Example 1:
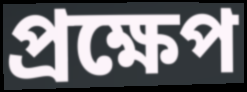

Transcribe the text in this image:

প্রক্ষেপ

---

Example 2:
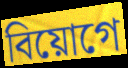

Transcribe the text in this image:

বিয়োগে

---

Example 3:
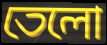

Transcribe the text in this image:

তেলো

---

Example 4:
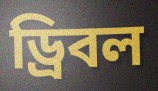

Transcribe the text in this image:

ড্রিবল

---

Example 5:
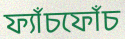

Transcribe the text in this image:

ফ্যাঁচফোঁচ